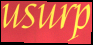
usurp